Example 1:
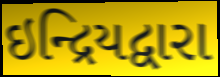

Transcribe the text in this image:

ઇન્દ્રિયદ્વારા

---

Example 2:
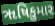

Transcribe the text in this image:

ૠષિકુમાર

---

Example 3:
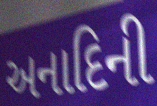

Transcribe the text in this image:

અનાદિની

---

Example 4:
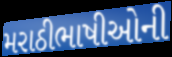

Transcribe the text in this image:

મરાઠીભાષીઓની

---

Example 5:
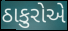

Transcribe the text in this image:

ઠાકુરોએ